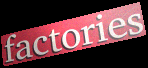
factories